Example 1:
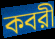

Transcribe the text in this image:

কবরী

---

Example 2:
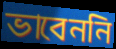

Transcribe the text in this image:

ভাবেননি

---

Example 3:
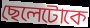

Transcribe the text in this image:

ছেলেটোকে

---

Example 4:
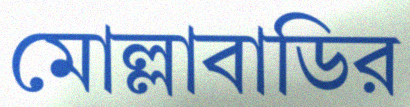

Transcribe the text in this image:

মোল্লাবাডির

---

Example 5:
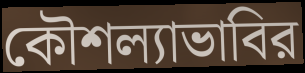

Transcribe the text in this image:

কৌশল্যাভাবির